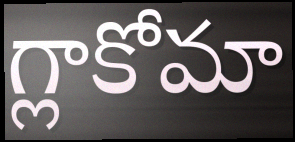
గ్లాకోమా